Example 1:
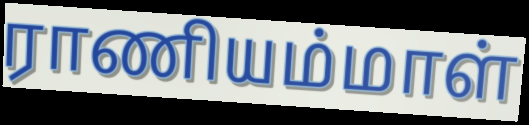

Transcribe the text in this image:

ராணியம்மாள்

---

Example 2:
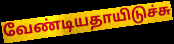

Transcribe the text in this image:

வேண்டியதாயிடுச்சு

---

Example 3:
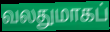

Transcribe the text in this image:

வலதுமாகப்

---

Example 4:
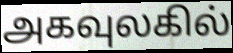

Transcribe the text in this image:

அகவுலகில்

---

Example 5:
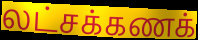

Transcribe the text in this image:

லட்சக்கணக்